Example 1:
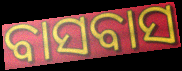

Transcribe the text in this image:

ବାସବାସ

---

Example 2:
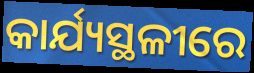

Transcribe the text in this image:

କାର୍ଯ୍ୟସ୍ଥଳୀରେ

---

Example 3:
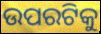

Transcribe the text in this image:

ଉପରଟିକୁ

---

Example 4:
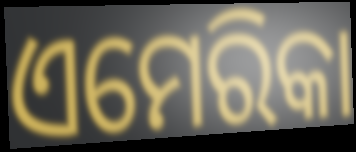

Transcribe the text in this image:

ଏମେରିକା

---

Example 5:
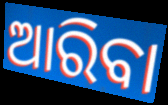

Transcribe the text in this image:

ଆରିବା